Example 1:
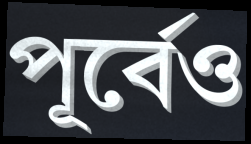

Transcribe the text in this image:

পূর্বেও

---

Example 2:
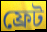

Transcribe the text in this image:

ফ্রেট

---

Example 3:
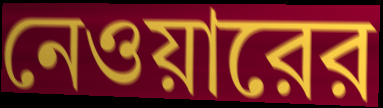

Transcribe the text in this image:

নেওয়ারের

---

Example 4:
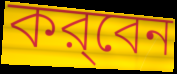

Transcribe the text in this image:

কর্‌বেন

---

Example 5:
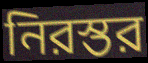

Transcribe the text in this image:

নিরস্তর